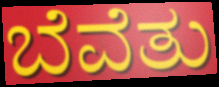
ಬೆವೆತು